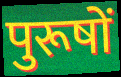
पुरूषों